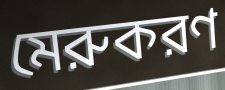
মেরুকরণ